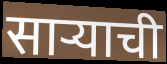
सार्‍याची